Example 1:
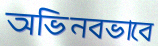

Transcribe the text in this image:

অভিনবভাবে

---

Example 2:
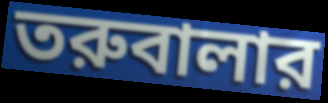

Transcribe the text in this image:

তরুবালার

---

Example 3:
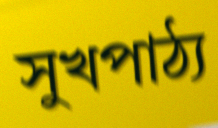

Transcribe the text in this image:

সুখপাঠ্য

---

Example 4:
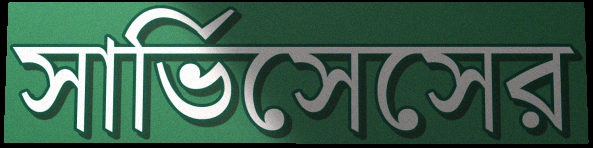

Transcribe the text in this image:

সার্ভিসেসের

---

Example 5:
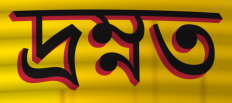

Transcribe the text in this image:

দ্রম্নত